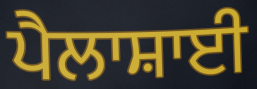
ਪੈਲਾਸ਼ਾਈ